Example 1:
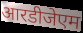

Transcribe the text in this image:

आरडीजेएम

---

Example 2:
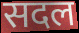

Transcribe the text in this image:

सदल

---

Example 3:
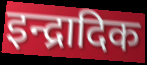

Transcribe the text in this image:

इन्द्रादिक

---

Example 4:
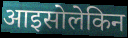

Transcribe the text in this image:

आइसोलेकिन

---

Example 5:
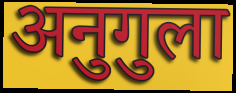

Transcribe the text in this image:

अनुगुला